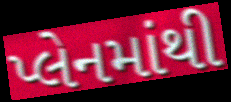
પ્લેનમાંથી